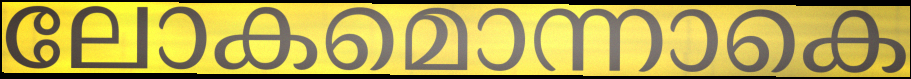
ലോകമൊന്നാകെ